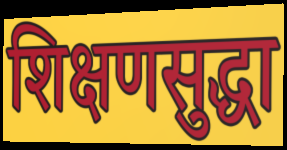
शिक्षणसुद्धा